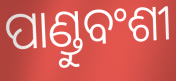
ପାଣ୍ଡୁବଂଶୀ